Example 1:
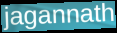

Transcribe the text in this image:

jagannath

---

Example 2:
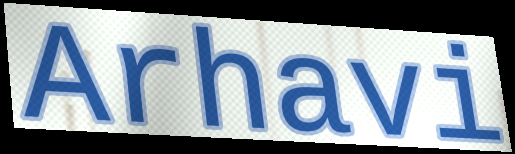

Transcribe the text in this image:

Arhavi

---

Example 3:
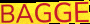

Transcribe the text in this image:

BAGGE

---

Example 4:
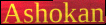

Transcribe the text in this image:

Ashokan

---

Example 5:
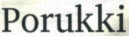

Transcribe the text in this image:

Porukki